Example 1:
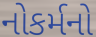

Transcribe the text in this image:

નોકર્મનો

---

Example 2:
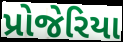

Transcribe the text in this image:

પ્રોજેરિયા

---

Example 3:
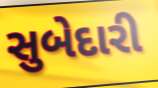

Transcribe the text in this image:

સુબેદારી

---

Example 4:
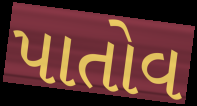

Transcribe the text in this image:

પાતોવ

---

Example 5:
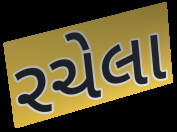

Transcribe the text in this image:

રચેલા